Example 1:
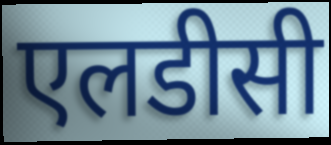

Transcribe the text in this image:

एलडीसी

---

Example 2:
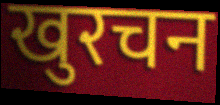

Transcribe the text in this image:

खुरचन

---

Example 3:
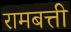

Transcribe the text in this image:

रामबत्ती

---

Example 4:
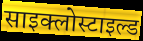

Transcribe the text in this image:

साइक्लोस्टाइल्ड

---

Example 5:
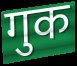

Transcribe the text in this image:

गुक